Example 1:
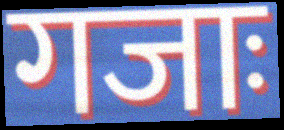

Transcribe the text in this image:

गजाः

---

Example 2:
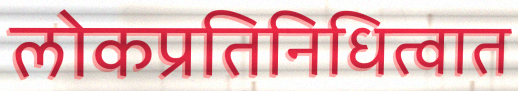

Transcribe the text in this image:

लोकप्रतिनिधित्वात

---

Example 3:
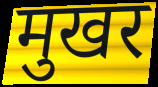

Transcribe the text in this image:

मुखर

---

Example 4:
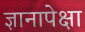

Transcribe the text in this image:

ज्ञानापेक्षा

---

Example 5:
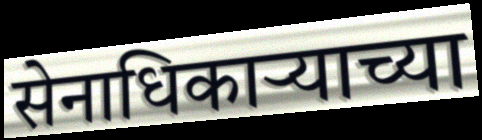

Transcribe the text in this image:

सेनाधिकाऱ्याच्या